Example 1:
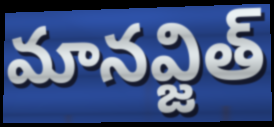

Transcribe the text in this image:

మానవ్జిత్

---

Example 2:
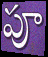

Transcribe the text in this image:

పూ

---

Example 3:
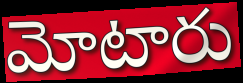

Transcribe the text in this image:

మోటారు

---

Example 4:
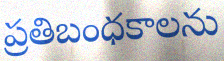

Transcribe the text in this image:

ప్రతిబంధకాలను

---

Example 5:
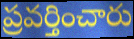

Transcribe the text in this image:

ప్రవర్తించారు